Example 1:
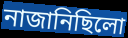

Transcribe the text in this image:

নাজানিছিলো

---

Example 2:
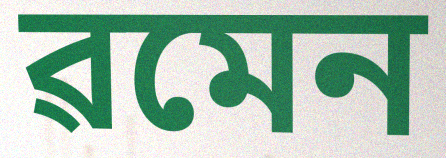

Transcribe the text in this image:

ৱমেন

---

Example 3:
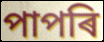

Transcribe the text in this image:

পাপৰি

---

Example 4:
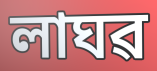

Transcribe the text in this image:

লাঘৱ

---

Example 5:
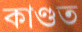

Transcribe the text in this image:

কাণ্ডত